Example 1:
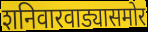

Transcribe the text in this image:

शनिवारवाड्यासमोर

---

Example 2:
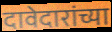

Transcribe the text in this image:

दावेदारांच्या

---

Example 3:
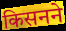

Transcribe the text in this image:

किसनने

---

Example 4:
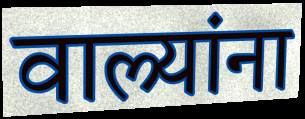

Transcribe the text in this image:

वाल्यांना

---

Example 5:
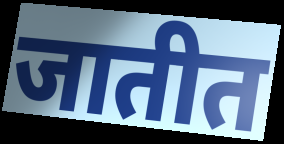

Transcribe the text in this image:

जातीत